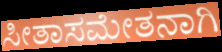
ಸೀತಾಸಮೇತನಾಗಿ